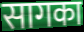
सागका